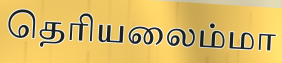
தெரியலைம்மா